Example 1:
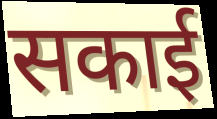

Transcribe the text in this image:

सकाई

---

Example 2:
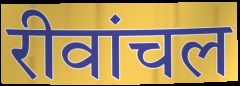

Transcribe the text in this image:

रीवांचल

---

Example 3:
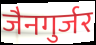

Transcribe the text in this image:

जैनगुर्जर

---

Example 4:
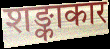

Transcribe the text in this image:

शङ्काकार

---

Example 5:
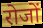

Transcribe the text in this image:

रोजों